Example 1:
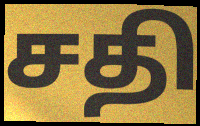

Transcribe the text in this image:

சதி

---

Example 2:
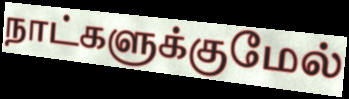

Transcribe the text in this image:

நாட்களுக்குமேல்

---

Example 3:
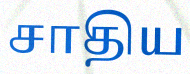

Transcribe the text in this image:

சாதிய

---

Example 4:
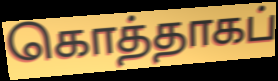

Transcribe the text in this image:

கொத்தாகப்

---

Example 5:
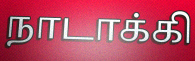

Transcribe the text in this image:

நாடாக்கி